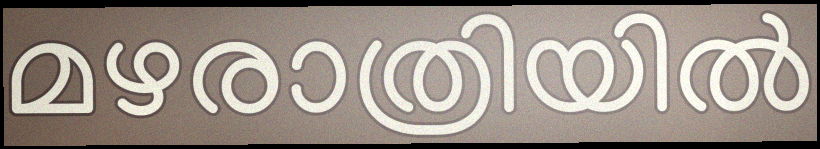
മഴരാത്രിയിൽ